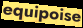
equipoise